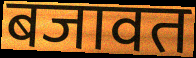
बजावत